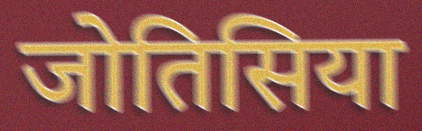
जोतिसिया